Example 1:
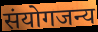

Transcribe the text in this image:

संयोगजन्य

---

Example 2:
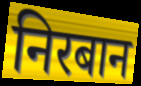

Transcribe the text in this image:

निरबान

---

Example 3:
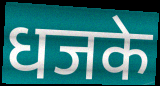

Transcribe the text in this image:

धजके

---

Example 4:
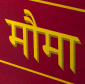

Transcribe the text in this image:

मौमा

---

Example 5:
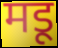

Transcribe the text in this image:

मडू